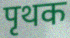
पृथक